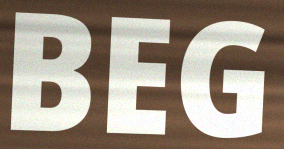
BEG